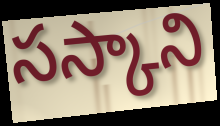
సస్కాని